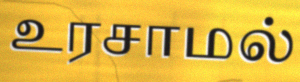
உரசாமல்